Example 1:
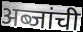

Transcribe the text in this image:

अब्जांची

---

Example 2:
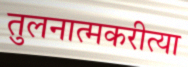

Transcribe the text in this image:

तुलनात्मकरीत्या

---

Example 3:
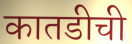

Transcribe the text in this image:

कातडीची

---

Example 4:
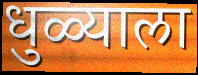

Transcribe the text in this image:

धुळ्याला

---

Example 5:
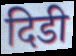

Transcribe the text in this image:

दिडी